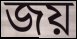
জয়